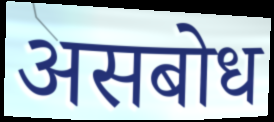
असबोध